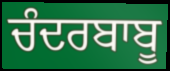
ਚੰਦਰਬਾਬੂ